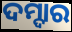
ଦମ୍ଦାର